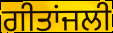
ਗੀਤਾਂਜਲੀ